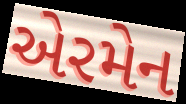
એરમેન